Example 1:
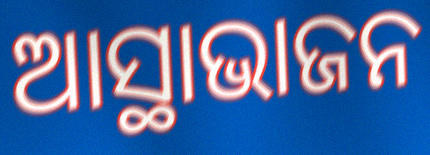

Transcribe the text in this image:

ଆସ୍ଥାଭାଜନ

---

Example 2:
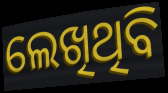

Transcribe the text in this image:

ଲେଖିଥିବି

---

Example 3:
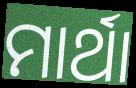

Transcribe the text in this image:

ମାର୍ଥା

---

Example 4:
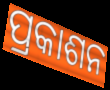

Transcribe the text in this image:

ପ୍ରକାଶନ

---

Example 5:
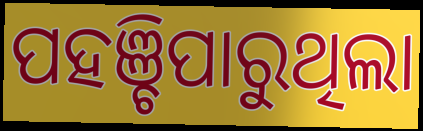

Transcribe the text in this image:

ପହଞ୍ଚିପାରୁଥିଲା